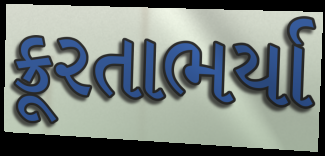
ક્રૂરતાભર્યા